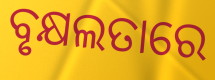
ବୃକ୍ଷଲତାରେ